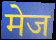
मेज